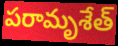
పరామృశేత్